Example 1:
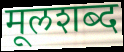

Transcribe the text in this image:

मूलशब्द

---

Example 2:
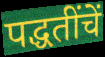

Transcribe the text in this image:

पद्धतींचें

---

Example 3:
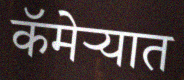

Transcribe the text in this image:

कॅमेर्‍यात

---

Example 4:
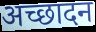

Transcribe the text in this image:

अच्छादन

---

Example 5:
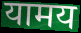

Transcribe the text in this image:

यामय